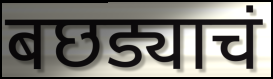
बछड्याचं